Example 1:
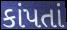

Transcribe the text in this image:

કાંપતાં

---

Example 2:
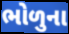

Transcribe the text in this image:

ભોળુના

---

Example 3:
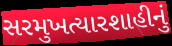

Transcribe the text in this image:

સરમુખત્યારશાહીનું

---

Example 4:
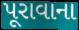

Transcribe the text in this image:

પૂરાવાના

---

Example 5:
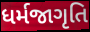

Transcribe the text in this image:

ધર્મજાગૃતિ